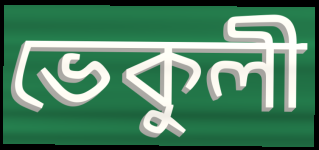
ভেকুলী